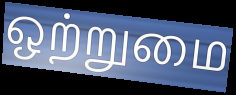
ஒற்றுமை